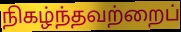
நிகழ்ந்தவற்றைப்